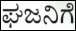
ಘಜನಿಗೆ